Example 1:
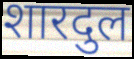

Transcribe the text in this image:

शारदुल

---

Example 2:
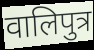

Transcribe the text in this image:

वालिपुत्र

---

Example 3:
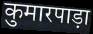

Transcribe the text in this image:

कुमारपाड़ा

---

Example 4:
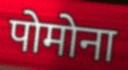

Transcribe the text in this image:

पोमोना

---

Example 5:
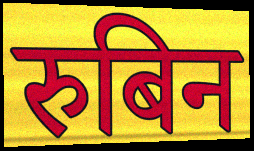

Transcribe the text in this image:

रुबिन